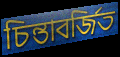
চিন্তাবর্জিত